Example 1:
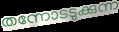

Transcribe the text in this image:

തന്നോടടുക്കുന്ന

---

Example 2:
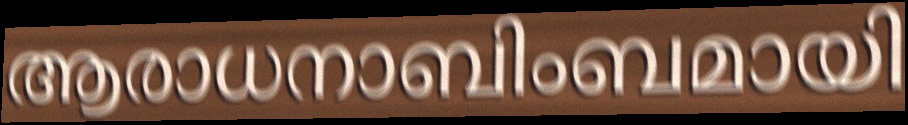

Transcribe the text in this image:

ആരാധനാബിംബമായി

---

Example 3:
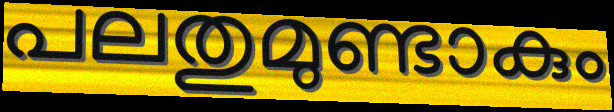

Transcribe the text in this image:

പലതുമുണ്ടാകും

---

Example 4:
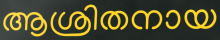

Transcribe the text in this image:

ആശ്രിതനായ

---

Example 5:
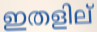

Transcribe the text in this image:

ഇതളില്